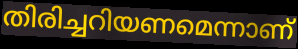
തിരിച്ചറിയണമെന്നാണ്